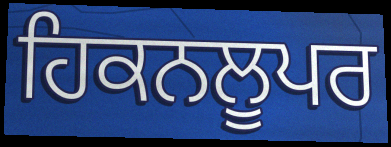
ਹਿਕਨਲੂਪਰ